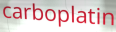
carboplatin